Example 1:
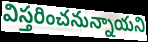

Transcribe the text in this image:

విస్తరించనున్నాయని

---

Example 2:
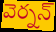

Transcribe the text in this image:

వెర్నన్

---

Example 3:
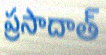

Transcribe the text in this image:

ప్రసాదాత్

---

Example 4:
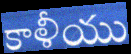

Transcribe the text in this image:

కాళీయు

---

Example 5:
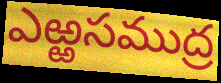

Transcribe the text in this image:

ఎఱ్ఱసముద్ర